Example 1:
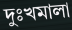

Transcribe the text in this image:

দুঃখমালা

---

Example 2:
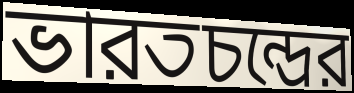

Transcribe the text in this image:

ভারতচন্দ্রের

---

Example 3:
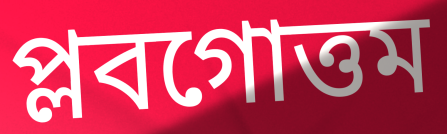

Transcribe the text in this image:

প্লবগোত্তম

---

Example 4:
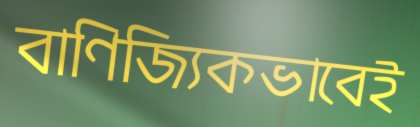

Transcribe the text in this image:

বাণিজ্যিকভাবেই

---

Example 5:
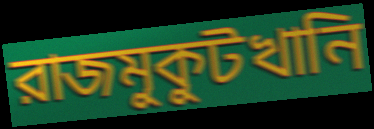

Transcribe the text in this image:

রাজমুকুটখানি